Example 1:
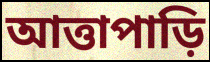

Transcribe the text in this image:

আত্তাপাড়ি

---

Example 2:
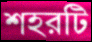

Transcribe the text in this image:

শহরটি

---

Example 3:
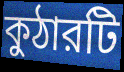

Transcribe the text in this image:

কুঠারটি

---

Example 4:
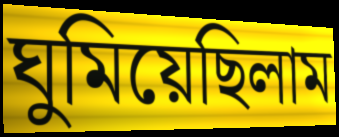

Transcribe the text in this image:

ঘুমিয়েছিলাম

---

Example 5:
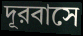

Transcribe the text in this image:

দূরবাসে